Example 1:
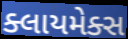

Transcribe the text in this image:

ક્લાયમેક્સ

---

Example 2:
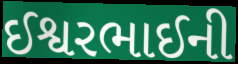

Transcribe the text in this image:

ઈશ્વરભાઈની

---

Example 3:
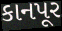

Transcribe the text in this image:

કાનપૂર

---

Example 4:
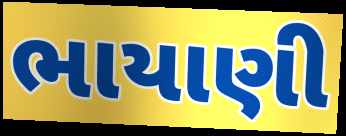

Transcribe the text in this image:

ભાયાણી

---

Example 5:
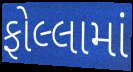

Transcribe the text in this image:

ફોલ્લામાં